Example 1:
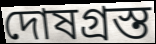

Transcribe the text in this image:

দোষগ্রস্ত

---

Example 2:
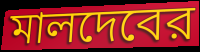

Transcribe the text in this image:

মালদেবের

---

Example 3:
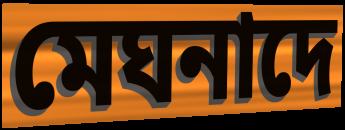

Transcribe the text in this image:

মেঘনাদে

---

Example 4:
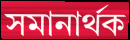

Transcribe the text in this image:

সমানার্থক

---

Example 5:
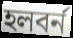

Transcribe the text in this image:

হলবর্ন